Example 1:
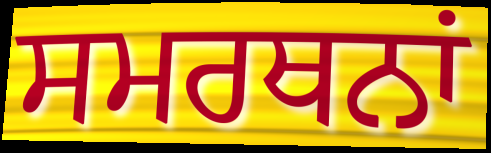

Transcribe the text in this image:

ਸਮਰਥਨਾਂ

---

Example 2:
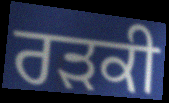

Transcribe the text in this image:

ਰੜਕੀ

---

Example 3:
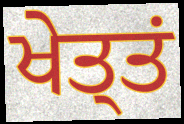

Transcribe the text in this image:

ਖੇਤ੍ਤਂ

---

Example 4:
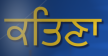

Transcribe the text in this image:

ਕਤਿਣਾ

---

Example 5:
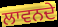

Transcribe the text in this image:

ਲਾਵਨਦੇ